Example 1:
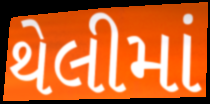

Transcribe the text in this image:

થેલીમાં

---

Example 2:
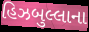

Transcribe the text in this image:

હિઝબુલ્લાના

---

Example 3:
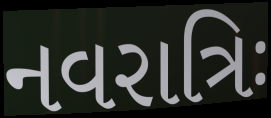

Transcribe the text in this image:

નવરાત્રિઃ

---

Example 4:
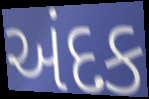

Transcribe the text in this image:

અંદક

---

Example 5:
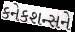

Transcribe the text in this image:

કનેકશન્સને